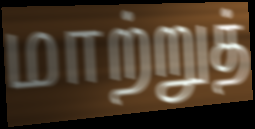
மாற்றுத்